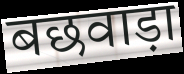
बछवाड़ा